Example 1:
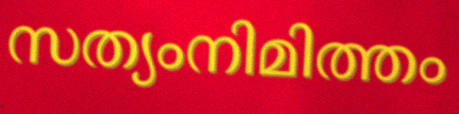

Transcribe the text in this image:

സത്യംനിമിത്തം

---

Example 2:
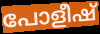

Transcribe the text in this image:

പോളീഷ്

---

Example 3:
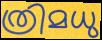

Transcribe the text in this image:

ത്രിമധു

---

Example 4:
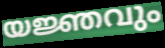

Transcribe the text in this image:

യജ്ഞവും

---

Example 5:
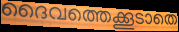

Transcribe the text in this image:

ദൈവത്തെക്കൂടാതെ